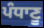
ਪੰਧਾਣੂ